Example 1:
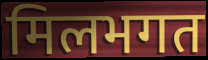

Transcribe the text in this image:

मिलभगत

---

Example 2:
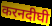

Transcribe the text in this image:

करनदीघी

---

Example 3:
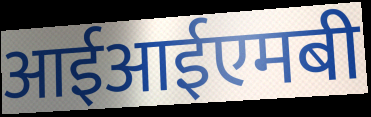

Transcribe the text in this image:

आईआईएमबी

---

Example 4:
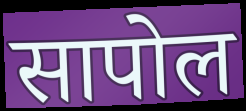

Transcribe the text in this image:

सापोल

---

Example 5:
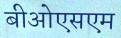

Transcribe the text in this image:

बीओएसएम